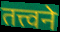
तत्त्वने